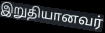
இறுதியானவர்